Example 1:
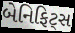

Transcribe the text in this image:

બેનિફિટ્સ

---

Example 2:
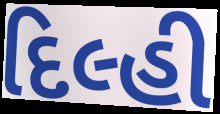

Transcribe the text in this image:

દિલ્હી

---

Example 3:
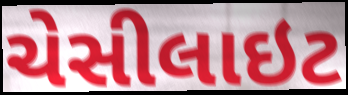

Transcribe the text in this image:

ચેસીલાઇટ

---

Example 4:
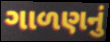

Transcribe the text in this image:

ગાળણનું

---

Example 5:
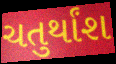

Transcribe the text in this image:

ચતુર્થાંશ